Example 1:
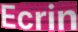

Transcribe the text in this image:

Ecrin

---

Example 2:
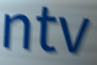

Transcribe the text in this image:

ntv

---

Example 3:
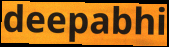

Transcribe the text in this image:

deepabhi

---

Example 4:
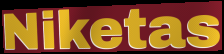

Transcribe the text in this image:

Niketas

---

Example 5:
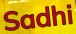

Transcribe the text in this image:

Sadhi